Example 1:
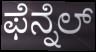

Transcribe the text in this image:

ಫೆನ್ನೆಲ್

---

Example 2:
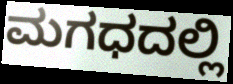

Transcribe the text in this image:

ಮಗಧದಲ್ಲಿ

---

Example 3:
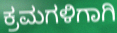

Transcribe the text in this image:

ಕ್ರಮಗಳಿಗಾಗಿ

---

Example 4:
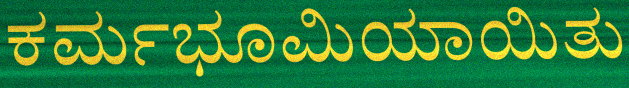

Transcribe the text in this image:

ಕರ್ಮಭೂಮಿಯಾಯಿತು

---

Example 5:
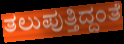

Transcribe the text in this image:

ತಲುಪುತ್ತಿದ್ದಂತೆ